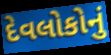
દેવલોકોનું